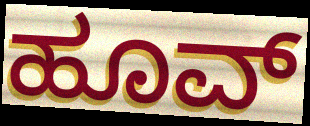
ಹೂವ್